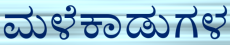
ಮಳೆಕಾಡುಗಳ